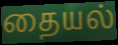
தையல்